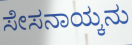
ಸೇಸನಾಯ್ಕನು